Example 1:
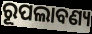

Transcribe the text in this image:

ରୂପଲାବଣ୍ୟ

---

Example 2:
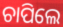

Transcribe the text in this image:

ଚାପିଲେ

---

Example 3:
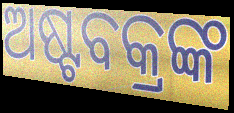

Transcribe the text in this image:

ଅଷ୍ଟବକ୍ରଙ୍କ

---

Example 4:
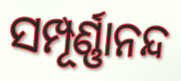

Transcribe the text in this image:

ସମ୍ପୂର୍ଣ୍ଣାନନ୍ଦ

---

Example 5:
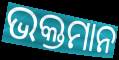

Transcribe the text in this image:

ଭକ୍ତମାନ